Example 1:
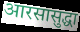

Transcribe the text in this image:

आरसासुद्धा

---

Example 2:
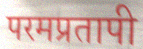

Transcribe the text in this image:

परमप्रतापी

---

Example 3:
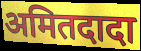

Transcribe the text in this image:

अमितदादा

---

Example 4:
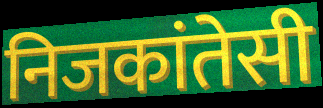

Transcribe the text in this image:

निजकांतेसी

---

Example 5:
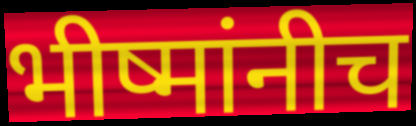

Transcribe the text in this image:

भीष्मांनीच